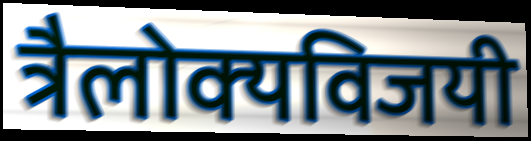
त्रैलोक्यविजयी